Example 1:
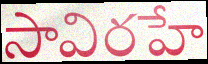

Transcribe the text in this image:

సావిరహే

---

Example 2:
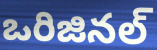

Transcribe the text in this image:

ఒరిజినల్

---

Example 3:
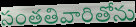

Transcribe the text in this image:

సంతతివారితోను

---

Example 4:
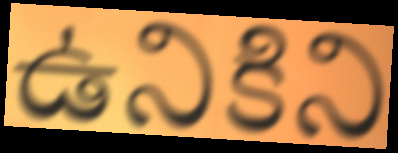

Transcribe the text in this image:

ఉనికిని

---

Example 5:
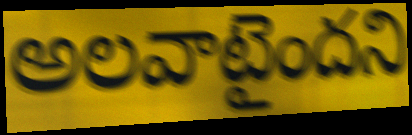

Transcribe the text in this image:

అలవాటైందని